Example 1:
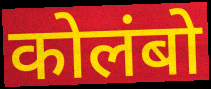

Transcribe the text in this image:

कोलंबो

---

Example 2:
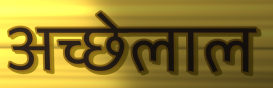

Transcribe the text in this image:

अच्छेलाल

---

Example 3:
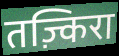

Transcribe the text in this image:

तज़्किरा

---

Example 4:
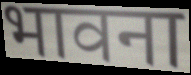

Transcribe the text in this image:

भावना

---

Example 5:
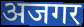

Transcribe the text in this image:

अजगर